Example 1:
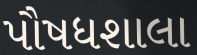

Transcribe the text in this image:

પૌષધશાલા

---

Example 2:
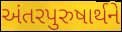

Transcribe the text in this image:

અંતરપુરુષાર્થને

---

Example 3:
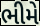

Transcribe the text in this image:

ભીમે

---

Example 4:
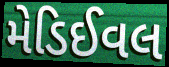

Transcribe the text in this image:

મેડિઈવલ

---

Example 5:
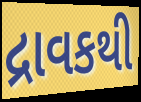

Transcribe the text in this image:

દ્રાવકથી